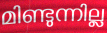
മിണ്ടുന്നില്ല